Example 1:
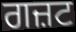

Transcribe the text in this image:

ਗਜ਼ਟ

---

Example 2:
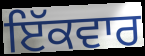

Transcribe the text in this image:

ਇੱਕਵਾਰ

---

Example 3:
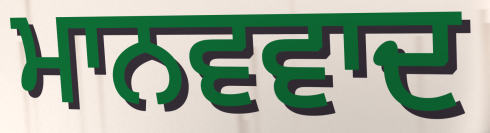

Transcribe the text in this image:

ਮਾਨਵਵਾਦ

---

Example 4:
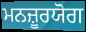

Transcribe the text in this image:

ਮਨਜ਼ੂਰਯੋਗ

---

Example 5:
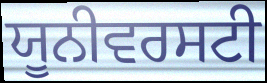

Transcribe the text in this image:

ਯੂਨੀਵਰਸਟੀ